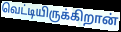
வெட்டியிருக்கிறான்